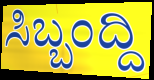
ಸಿಬ್ಬಂದ್ದಿ